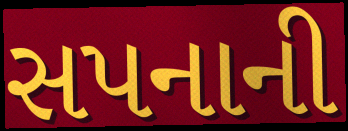
સપનાની